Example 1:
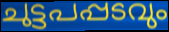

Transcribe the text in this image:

ചുട്ടപപ്പടവും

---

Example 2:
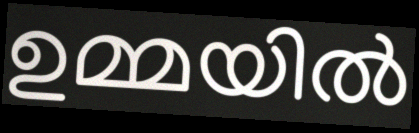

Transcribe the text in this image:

ഉമ്മയിൽ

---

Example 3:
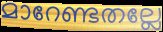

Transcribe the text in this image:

മാറേണ്ടതല്ലേ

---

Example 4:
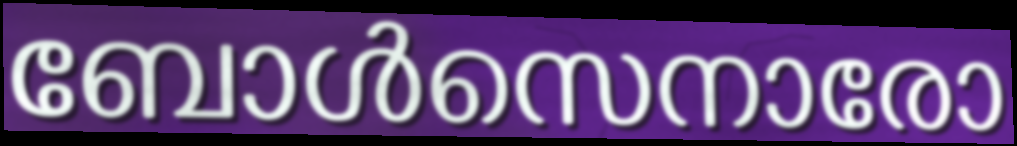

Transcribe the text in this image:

ബോൾസെനാരോ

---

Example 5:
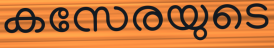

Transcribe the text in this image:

കസേരയുടെ